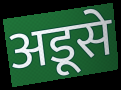
अडूसे